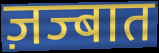
ज़ज्बात